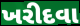
ખરીદવા